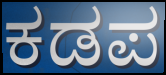
ಕಡಪ